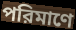
পরিমাণে